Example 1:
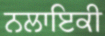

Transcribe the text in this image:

ਨਲਾਇਕੀ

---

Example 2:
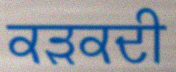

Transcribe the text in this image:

ਕੜਕਦੀ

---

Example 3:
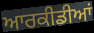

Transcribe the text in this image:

ਆਰਕੀਡੀਆਂ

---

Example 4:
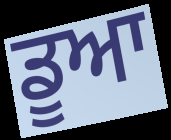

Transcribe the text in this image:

ਡੂਆ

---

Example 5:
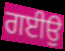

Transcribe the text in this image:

ਗਈਉ